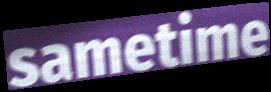
sametime